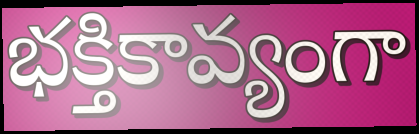
భక్తికావ్యంగా